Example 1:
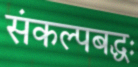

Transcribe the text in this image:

संकल्पबद्धः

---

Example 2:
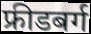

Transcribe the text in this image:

फ्रीडबर्ग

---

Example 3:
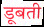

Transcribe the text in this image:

डूबती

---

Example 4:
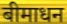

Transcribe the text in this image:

बीमाधन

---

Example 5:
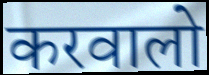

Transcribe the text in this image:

करवालो